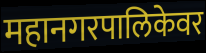
महानगरपालिकेवर